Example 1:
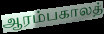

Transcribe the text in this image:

ஆரம்பகாலத்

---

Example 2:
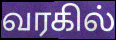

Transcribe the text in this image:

வரகில்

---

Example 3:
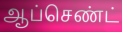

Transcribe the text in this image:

ஆப்செண்ட்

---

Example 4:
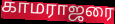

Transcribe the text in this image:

காமராஜரை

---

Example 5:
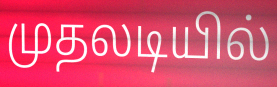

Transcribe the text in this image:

முதலடியில்